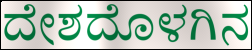
ದೇಶದೊಳಗಿನ